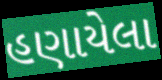
હણાયેલા